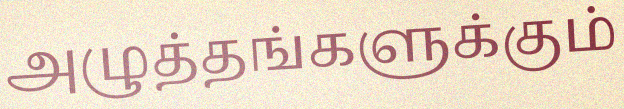
அழுத்தங்களுக்கும்